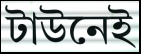
টাউনেই